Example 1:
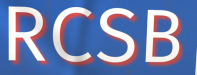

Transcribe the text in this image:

RCSB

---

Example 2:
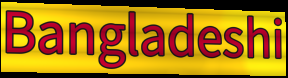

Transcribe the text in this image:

Bangladeshi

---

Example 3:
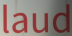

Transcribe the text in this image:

laud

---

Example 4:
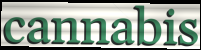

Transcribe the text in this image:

cannabis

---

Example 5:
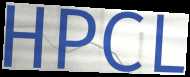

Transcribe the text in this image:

HPCL